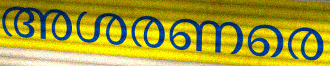
അശരണരെ